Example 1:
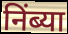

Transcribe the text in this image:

निंब्या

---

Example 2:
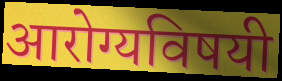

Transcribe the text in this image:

आरोग्यविषयी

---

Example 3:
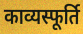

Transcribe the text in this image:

काव्यस्फूर्ति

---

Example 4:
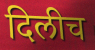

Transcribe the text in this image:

दिलीच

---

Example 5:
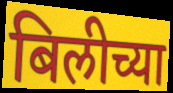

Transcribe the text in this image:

बिलीच्या